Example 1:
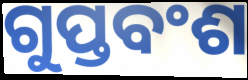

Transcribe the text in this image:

ଗୁପ୍ତବଂଶ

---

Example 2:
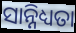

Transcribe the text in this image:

ସାନ୍ନିଧ୍ୟତା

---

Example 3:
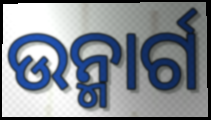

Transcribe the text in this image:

ଉନ୍ମାର୍ଗ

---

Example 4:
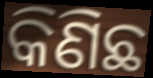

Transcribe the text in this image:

କିଣିଛ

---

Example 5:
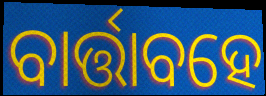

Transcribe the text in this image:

ବାର୍ତ୍ତାବହେ